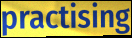
practising